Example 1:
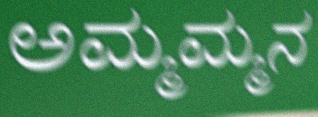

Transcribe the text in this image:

ಅಮ್ಮಮ್ಮನ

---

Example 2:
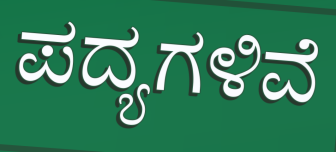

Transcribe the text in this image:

ಪದ್ಯಗಳಿವೆ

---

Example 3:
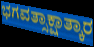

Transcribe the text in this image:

ಭಗವತ್ಸಾಕ್ಷಾತ್ಕಾರ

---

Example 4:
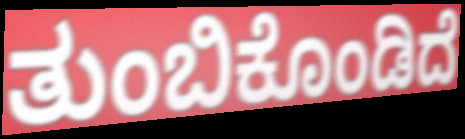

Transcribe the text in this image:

ತುಂಬಿಕೊಂಡಿದೆ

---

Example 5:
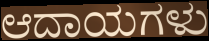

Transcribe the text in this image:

ಆದಾಯಗಳು